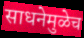
साधनेमुळेच